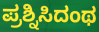
ಪ್ರಶ್ನಿಸಿದಂಥ